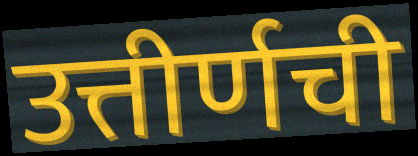
उत्तीर्णची